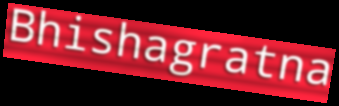
Bhishagratna